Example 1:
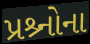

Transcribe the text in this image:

પ્રશ્ર્નોના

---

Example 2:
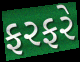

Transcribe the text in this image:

ફરફરે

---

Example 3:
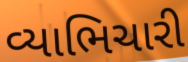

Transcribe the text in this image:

વ્યાભિચારી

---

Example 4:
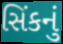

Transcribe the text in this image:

સિંકનું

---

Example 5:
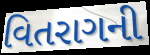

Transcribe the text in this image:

વિતરાગની